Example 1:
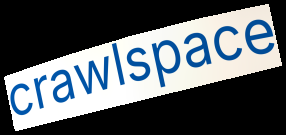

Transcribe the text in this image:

crawlspace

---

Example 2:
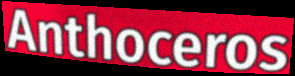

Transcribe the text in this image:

Anthoceros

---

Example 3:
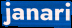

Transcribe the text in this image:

janari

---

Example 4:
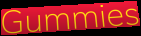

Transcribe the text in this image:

Gummies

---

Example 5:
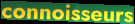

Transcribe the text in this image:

connoisseurs